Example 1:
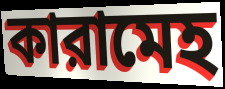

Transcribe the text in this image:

কারামেহ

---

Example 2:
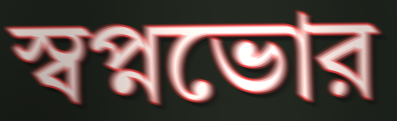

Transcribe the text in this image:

স্বপ্নভোর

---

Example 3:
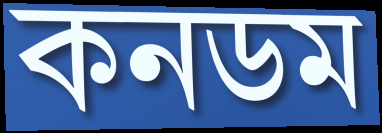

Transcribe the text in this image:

কনডম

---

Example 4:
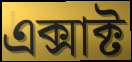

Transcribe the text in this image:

এক্সাক্ট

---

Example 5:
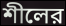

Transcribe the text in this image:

শীলের